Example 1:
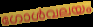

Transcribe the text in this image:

ഗോൾവലയം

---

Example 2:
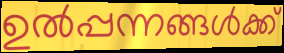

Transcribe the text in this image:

ഉൽപ്പന്നങ്ങൾക്ക്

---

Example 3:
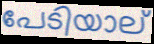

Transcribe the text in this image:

പേടിയാല്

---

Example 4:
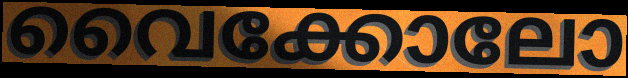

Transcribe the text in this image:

വൈക്കോലോ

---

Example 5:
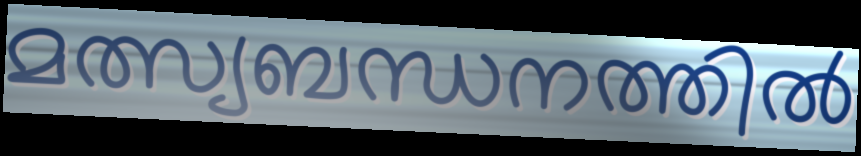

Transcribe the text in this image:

മത്സ്യബന്ധനത്തിൽ